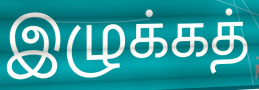
இழுக்கத்